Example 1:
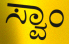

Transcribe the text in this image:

ಸ್ವಾಂ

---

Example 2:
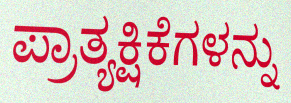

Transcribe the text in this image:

ಪ್ರಾತ್ಯಕ್ಷಿಕೆಗಳನ್ನು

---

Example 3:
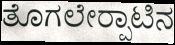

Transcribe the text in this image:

ತೊಗಲೇರ‍್ಪಾಟಿನ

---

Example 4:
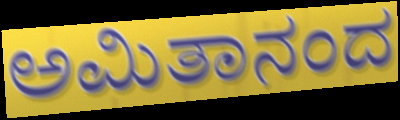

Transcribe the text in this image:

ಅಮಿತಾನಂದ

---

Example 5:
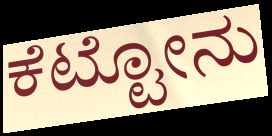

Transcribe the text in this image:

ಕೆಟ್ಟೋನು